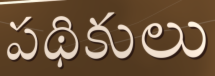
పథికులు